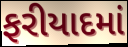
ફરીયાદમાં